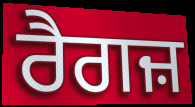
ਰੈਗਜ਼